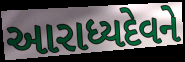
આરાધ્યદેવને